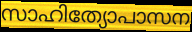
സാഹിത്യോപാസന